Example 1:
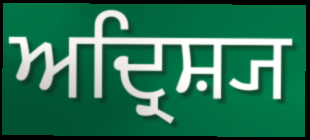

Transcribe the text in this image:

ਅਦ੍ਰਿਸ਼੍ਯ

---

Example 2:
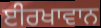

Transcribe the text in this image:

ਈਰਖਾਵਾਨ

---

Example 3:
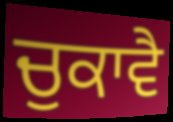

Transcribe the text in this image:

ਚੁਕਾਵੈ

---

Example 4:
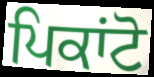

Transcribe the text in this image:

ਪਿਕਾਂਟੋ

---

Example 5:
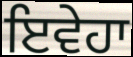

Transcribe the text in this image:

ਇਵੇਹਾ